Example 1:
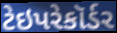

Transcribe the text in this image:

ટેઇપરેકૉર્ડર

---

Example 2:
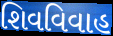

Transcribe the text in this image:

શિવવિવાહ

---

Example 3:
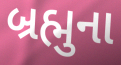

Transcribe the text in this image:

બ્રહ્મુના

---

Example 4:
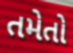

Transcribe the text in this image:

તમેતો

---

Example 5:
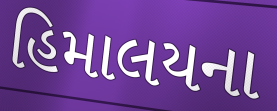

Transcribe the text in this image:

હિમાલયના